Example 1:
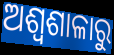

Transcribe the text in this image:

ଅଶ୍ୱଶାଳାରୁ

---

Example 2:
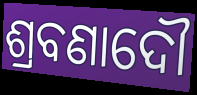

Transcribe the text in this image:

ଶ୍ରବଣାଦୌ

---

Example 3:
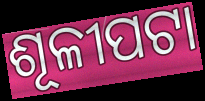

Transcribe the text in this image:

ଶୂଳୀପଟା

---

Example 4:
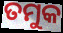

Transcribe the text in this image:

ତମୁକ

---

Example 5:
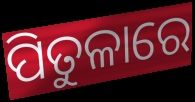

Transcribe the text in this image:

ପିତୁଳାରେ